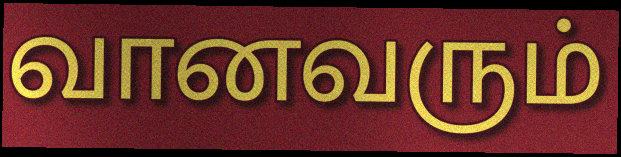
வானவரும்